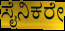
ಸೈನಿಕರೇ